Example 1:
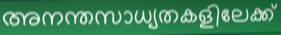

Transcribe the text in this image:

അനന്തസാധ്യതകളിലേക്ക്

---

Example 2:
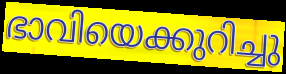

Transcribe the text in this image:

ഭാവിയെക്കുറിച്ചു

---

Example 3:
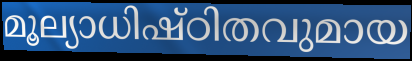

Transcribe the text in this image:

മൂല്യാധിഷ്ഠിതവുമായ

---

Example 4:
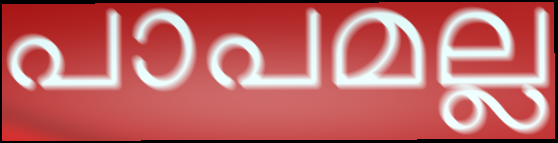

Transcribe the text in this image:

പാപമല്ല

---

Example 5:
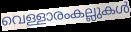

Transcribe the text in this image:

വെള്ളാരംകല്ലുകൾ